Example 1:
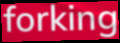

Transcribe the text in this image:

forking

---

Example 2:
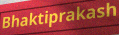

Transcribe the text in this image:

Bhaktiprakash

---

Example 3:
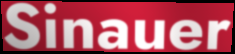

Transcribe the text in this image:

Sinauer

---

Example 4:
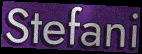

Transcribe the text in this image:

Stefani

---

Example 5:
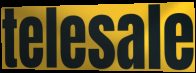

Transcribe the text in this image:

telesale